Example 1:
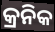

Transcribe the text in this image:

କ୍ରନିକ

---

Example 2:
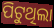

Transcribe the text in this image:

ପିଟୁଥିଲା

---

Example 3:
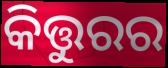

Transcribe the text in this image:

କିତ୍ତୁରର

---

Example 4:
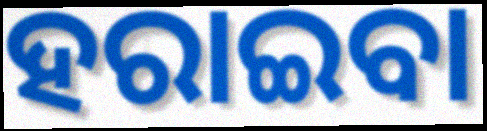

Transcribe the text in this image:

ହରାଇବା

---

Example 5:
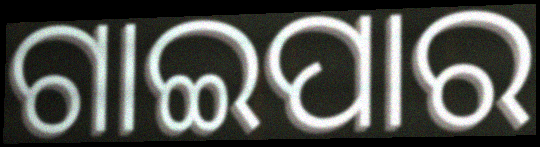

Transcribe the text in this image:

ଗାଇପାର